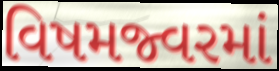
વિષમજ્વરમાં